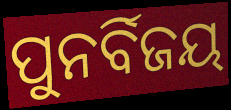
ପୁନର୍ବିଜୟ